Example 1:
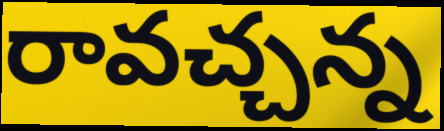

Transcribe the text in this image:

రావచ్చన్న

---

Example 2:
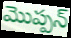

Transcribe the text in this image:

మొప్పన్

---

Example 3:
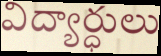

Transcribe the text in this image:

విద్యార్ధులు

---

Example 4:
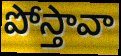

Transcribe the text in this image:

పోస్తావా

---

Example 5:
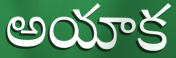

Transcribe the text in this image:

అయాక